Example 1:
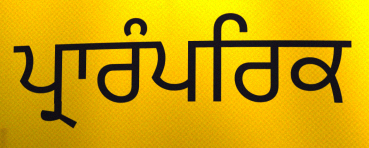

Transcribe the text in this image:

ਪ੍ਰਾਰੰਪਰਿਕ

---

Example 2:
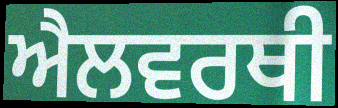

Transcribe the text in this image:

ਐਲਵਰਥੀ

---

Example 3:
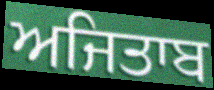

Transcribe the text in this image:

ਅਜਿਤਾਬ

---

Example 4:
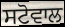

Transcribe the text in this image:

ਸਟੋਵਾਲ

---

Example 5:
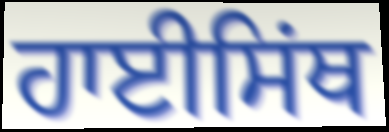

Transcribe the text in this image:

ਹਾਈਸਿਂਥ